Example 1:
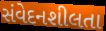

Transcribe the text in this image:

સંવેદનશીલતા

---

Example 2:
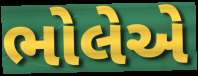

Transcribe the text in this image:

ભોલેએ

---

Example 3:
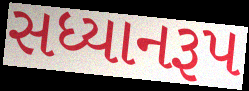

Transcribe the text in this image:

સધ્યાનરૂપ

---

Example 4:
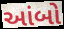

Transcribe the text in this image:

આંબો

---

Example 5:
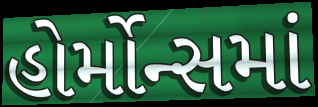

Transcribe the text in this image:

હોર્મોન્સમાં